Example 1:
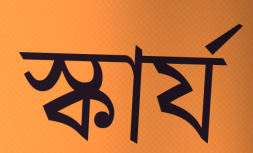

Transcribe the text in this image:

স্কার্য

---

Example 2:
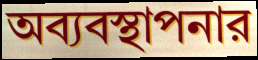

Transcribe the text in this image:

অব্যবস্থাপনার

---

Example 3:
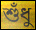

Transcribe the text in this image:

শুঁধু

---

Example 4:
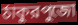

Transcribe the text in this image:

ঠাকুরপুজো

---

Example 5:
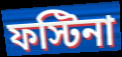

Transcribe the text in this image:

ফস্টিনা